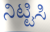
ನಿಟ್ಟಿಸಿ